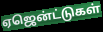
ஏஜென்ட்டுகள்